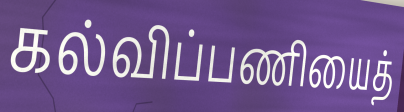
கல்விப்பணியைத்